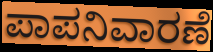
ಪಾಪನಿವಾರಣೆ